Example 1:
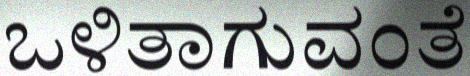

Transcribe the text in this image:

ಒಳಿತಾಗುವಂತೆ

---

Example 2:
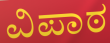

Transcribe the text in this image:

ವಿಪಾಠ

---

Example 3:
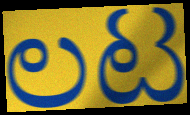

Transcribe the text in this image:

ಲಟ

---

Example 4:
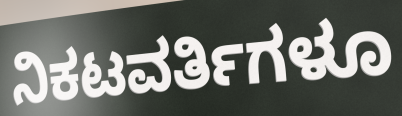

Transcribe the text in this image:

ನಿಕಟವರ್ತಿಗಳೂ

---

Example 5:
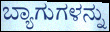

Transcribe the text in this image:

ಬ್ಯಾಗುಗಳನ್ನು